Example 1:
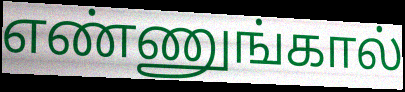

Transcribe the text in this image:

எண்ணுங்கால்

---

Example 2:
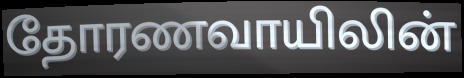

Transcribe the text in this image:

தோரணவாயிலின்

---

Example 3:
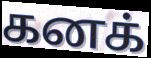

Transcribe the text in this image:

கனக்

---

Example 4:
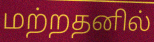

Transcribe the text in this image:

மற்றதனில்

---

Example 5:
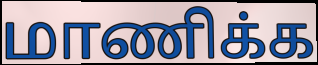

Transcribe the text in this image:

மாணிக்க